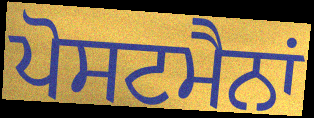
ਪੋਸਟਮੈਨਾਂ